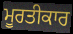
ਮੂਰਤੀਕਾਰ